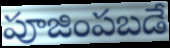
పూజింపబడే